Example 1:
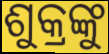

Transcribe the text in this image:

ଶୁକ୍ରଙ୍କୁ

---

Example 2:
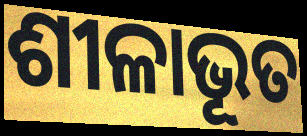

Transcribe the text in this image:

ଶୀଳାଭୂତ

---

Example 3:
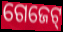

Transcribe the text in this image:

ଗେଜେଟ୍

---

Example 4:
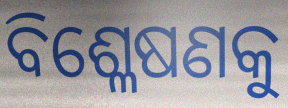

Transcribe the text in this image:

ବିଶ୍ଳେଷଣକୁ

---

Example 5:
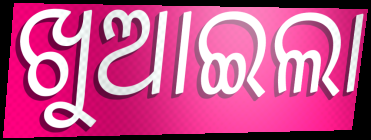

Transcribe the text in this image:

ଖୁଆଇଲା